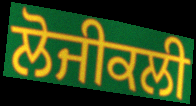
ਲੋਜੀਕਲੀ